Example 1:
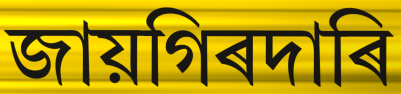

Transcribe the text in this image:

জায়গিৰদাৰি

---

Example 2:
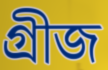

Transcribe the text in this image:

গ্ৰীজ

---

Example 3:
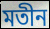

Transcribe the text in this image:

মতীন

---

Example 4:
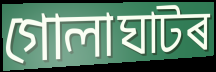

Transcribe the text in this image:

গোলাঘাটৰ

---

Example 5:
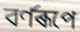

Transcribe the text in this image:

বৰ্ণৰূপে